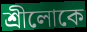
শ্রীলোকে